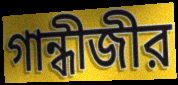
গান্ধীজীর